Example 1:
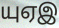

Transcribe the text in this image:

யுஏஇ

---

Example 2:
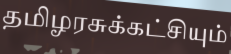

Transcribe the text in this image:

தமிழரசுக்கட்சியும்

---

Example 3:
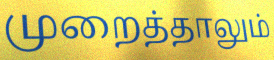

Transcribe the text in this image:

முறைத்தாலும்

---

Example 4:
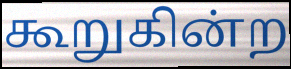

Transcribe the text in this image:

கூறுகின்ற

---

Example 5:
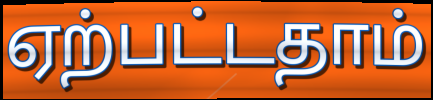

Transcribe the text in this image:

ஏற்பட்டதாம்